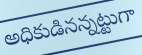
అధికుడినన్నట్టుగా